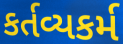
કર્તવ્યકર્મ